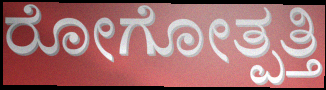
ರೋಗೋತ್ಪತ್ತಿ